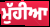
ਮੁੱਹੀਆ